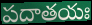
పదాతయః